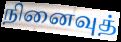
நினைவுத்